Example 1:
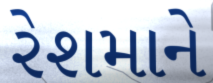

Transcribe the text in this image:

રેશમાને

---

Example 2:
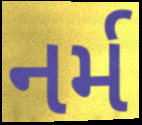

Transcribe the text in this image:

નર્મ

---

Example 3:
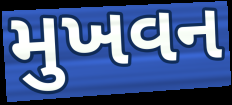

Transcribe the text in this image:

મુખવન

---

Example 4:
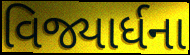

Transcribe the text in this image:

વિજ્યાર્ધના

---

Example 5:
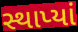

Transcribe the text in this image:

સ્થાપ્યાં